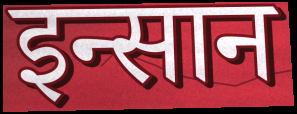
इन्सान